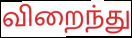
விறைந்து